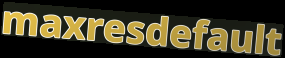
maxresdefault